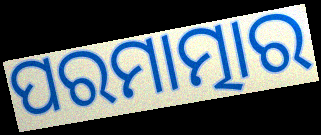
ପରମାତ୍ମାର